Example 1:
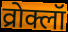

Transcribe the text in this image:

व्रोक्लॉ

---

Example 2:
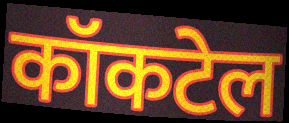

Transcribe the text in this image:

कॉकटेल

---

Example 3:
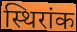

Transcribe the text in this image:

स्थिरांक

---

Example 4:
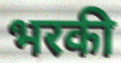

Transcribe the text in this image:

भरकी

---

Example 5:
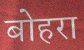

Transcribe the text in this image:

बोहरा